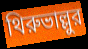
থিরুভাল্লুর